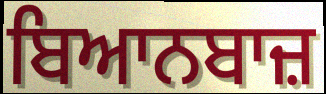
ਬਿਆਨਬਾਜ਼